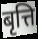
बृत्ति